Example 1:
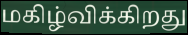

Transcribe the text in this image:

மகிழ்விக்கிறது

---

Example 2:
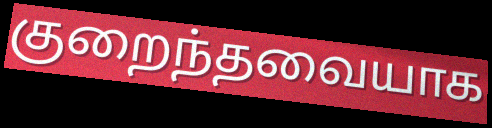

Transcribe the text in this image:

குறைந்தவையாக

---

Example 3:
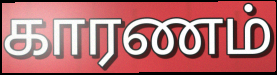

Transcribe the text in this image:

காரணம்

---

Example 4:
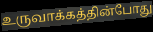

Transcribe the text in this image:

உருவாக்கத்தின்போது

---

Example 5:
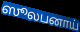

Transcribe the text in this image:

ஸூலபனாய்